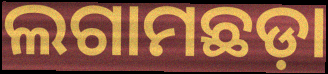
ଲଗାମଛଡ଼ା